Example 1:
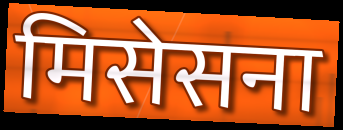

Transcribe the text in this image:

मिसेसना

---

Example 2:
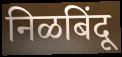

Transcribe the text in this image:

निळबिंदू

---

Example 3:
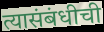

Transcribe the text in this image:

त्यासंबंधीची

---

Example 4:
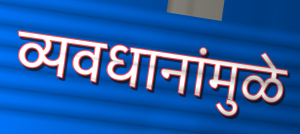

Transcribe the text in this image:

व्यवधानांमुळे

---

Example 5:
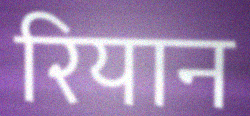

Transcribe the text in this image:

रियान